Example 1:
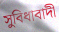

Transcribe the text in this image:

সুবিধাবাদী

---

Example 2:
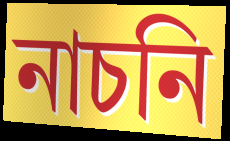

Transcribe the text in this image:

নাচনি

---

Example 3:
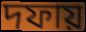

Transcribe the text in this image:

দফায়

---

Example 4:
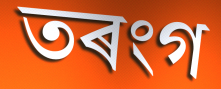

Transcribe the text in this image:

তৰংগ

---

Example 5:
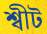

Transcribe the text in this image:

শ্বীট